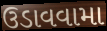
ઉડાવવામા